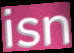
isn